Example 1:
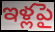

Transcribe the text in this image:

ఇళ్లపై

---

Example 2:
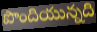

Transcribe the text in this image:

పొందియున్నది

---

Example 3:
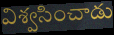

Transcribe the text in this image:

విశ్వసించాడు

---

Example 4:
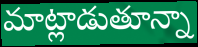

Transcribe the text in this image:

మాట్లాడుతూన్నా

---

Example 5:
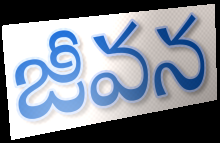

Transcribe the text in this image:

జీవన